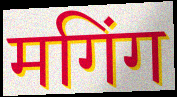
मगिंग